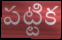
పట్టిక